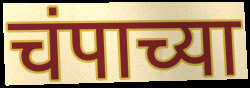
चंपाच्या